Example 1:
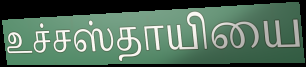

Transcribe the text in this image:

உச்சஸ்தாயியை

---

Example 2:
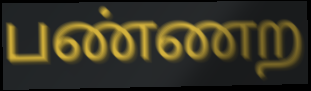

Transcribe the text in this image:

பண்ணற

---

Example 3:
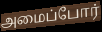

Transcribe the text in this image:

அமைப்போர்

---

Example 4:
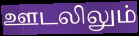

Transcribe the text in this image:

ஊடலிலும்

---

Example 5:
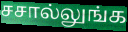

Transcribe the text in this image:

சசால்லுங்க